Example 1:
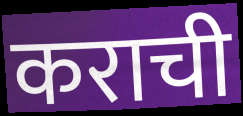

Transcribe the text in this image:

कराची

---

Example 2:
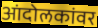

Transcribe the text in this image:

आंदोलकांवर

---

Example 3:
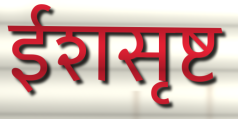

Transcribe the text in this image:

ईशसृष्ट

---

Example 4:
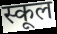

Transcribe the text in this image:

स्कूल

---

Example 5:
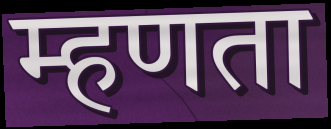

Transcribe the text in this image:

म्हणता